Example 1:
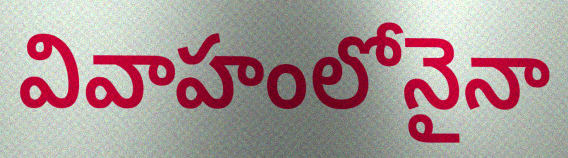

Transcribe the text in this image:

వివాహంలోనైనా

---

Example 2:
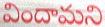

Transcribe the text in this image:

విందామని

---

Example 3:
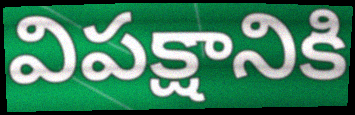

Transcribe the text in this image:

విపక్షానికి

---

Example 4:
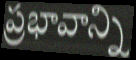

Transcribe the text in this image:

ప్రభావాన్ని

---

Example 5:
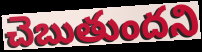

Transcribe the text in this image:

చెబుతుందని